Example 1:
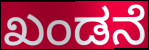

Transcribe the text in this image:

ಖಂಡನೆ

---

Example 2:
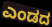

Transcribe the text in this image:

ಎಂಡದ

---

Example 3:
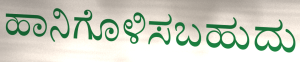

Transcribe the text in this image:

ಹಾನಿಗೊಳಿಸಬಹುದು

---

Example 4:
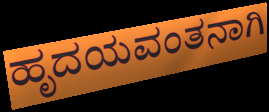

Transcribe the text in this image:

ಹೃದಯವಂತನಾಗಿ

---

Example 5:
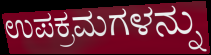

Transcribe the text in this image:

ಉಪಕ್ರಮಗಳನ್ನು